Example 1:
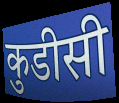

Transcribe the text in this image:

कुडीसी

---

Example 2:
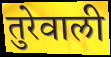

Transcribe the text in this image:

तुरेवाली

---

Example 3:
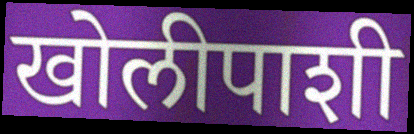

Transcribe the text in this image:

खोलीपाशी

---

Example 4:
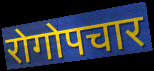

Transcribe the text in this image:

रोगोपचार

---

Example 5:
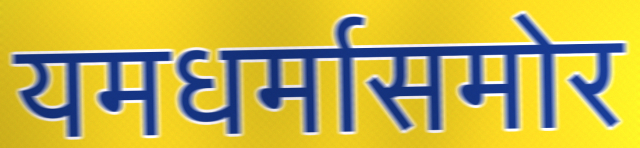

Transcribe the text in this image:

यमधर्मासमोर